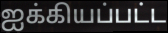
ஐக்கியப்பட்ட